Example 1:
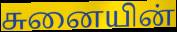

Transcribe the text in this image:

சுனையின்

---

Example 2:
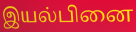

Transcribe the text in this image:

இயல்பினை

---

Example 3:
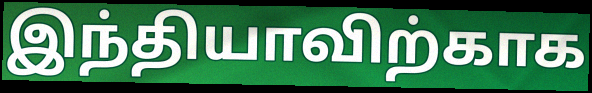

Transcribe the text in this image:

இந்தியாவிற்காக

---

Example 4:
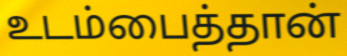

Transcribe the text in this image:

உடம்பைத்தான்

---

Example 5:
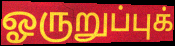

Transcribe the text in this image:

ஓருறுப்புக்